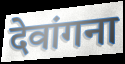
देवांगना